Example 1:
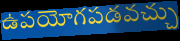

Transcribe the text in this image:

ఉపయోగపడవచ్చు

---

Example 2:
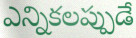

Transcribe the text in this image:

ఎన్నికలప్పుడే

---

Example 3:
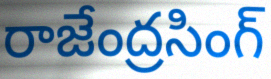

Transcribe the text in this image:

రాజేంద్రసింగ్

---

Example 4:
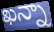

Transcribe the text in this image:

ఖన్నా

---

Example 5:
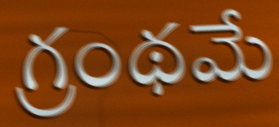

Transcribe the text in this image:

గ్రంథమే